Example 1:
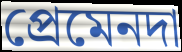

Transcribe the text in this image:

প্রেমেনদা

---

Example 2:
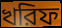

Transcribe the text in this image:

খরিফ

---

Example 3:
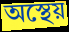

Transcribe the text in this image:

অস্থেয়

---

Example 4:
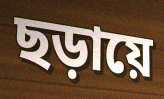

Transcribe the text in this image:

ছড়ায়ে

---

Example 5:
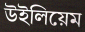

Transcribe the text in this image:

উইলিয়েম